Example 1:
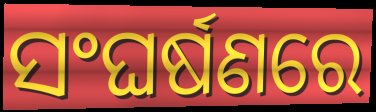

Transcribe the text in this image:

ସଂଘର୍ଷଣରେ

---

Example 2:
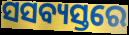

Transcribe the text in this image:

ସସବ୍ୟସ୍ତରେ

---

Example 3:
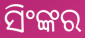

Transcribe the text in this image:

ସିଂଙ୍କର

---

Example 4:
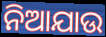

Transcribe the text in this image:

ନିଆଯାଉ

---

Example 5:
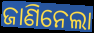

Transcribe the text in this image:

ଜାଣିନେଲା